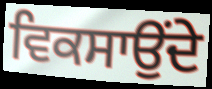
ਵਿਕਸਾਉਂਦੇ